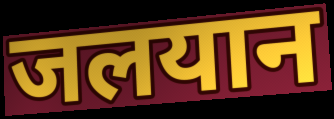
जलयान